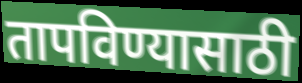
तापविण्यासाठी